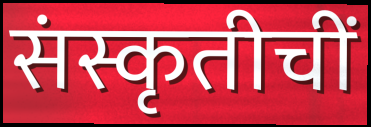
संस्कृतीचीं